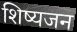
शिष्यजन